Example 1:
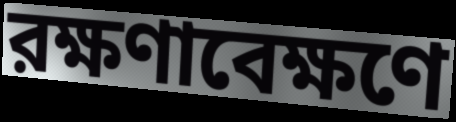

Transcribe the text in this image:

রক্ষণাবেক্ষণে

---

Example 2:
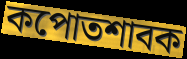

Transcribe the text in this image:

কপোতশাবক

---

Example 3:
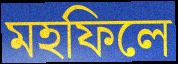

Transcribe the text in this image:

মহফিলে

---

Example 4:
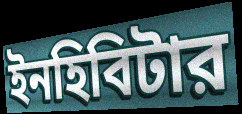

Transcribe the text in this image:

ইনহিবিটার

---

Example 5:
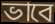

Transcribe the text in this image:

ভাবে